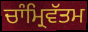
ਚਾੰਮ੍ਰਿਵੱਤਮ